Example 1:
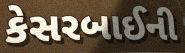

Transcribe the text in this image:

કેસરબાઈની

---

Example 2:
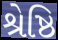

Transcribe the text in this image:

શ્રેષ્ઠિ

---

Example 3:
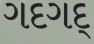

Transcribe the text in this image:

ગદગદ્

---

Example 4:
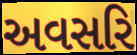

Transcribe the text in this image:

અવસરિ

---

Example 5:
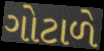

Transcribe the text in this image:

ગોટાળે